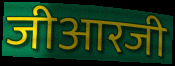
जीआरजी